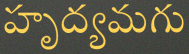
హృద్యమగు